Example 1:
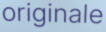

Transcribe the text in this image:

originale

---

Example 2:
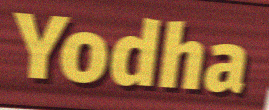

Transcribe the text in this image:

Yodha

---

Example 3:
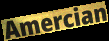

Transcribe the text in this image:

Amercian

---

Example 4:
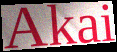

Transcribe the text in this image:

Akai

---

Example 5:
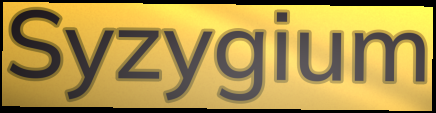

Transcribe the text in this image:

Syzygium